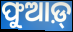
ଫୁଆଡ଼୍